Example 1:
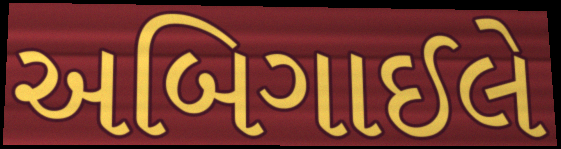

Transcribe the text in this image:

અબિગાઈલે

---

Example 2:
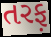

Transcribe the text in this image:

તરફ઼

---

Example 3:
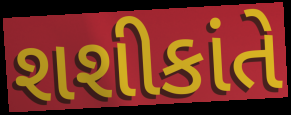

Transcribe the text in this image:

શશીકાંતે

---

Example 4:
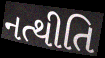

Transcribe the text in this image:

નત્થીતિ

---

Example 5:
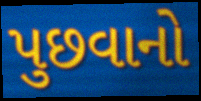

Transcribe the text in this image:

પુછવાનો